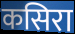
कसिरा